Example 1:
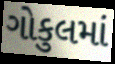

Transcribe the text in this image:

ગોકુલમાં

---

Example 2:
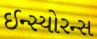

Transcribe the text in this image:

ઈન્સ્યોરન્સ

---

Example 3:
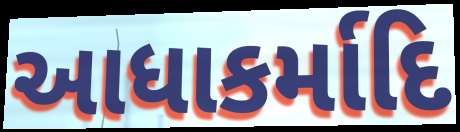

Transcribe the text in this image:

આધાકર્માદિ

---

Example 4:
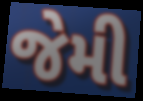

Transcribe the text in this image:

જેમી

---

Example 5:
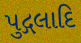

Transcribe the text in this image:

પુદ્ગલાદિ